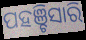
ପହଞ୍ଚିସାରି